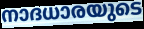
നാദധാരയുടെ